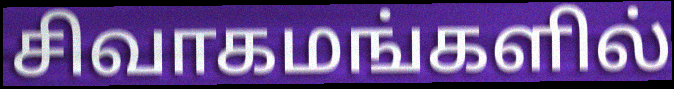
சிவாகமங்களில்